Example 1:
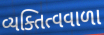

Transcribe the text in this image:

વ્યક્તિત્વવાળા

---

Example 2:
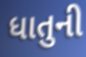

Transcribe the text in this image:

ધાતુની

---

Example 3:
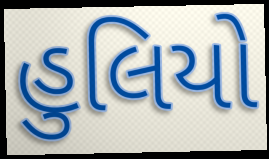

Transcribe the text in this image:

હુલિયો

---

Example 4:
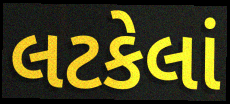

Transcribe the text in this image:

લટકેલાં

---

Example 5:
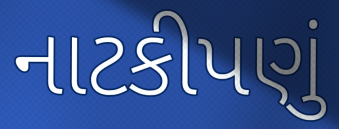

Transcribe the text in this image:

નાટકીપણું